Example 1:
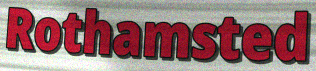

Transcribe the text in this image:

Rothamsted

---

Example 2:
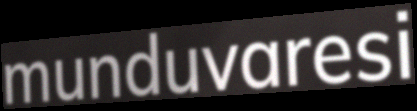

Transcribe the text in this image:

munduvaresi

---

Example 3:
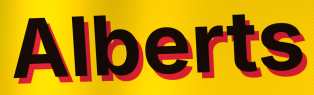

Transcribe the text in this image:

Alberts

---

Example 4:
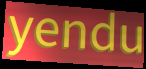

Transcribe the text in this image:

yendu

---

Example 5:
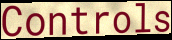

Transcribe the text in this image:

Controls